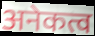
अनेकत्व